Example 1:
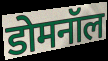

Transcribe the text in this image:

डोमनॉल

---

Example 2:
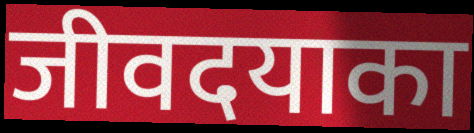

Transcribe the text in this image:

जीवदयाका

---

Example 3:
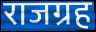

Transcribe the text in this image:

राजग्रह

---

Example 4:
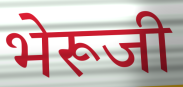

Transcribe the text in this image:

भेरूजी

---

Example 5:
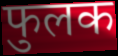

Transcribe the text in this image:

फुलक